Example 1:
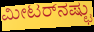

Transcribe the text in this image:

ಮೀಟರ್‌ನಷ್ಟು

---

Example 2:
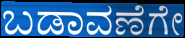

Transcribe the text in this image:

ಬಡಾವಣೆಗೇ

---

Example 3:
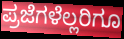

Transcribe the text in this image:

ಪ್ರಜೆಗಳೆಲ್ಲರಿಗೂ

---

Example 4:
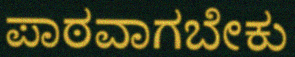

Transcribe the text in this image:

ಪಾಠವಾಗಬೇಕು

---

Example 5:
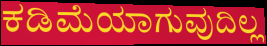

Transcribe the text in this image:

ಕಡಿಮೆಯಾಗುವುದಿಲ್ಲ